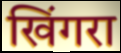
खिंगरा